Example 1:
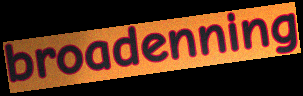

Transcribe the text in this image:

broadenning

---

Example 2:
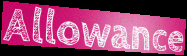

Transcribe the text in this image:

Allowance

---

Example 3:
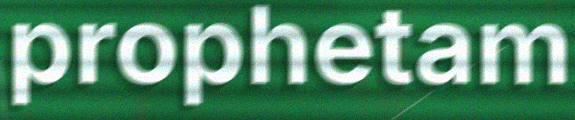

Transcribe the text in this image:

prophetam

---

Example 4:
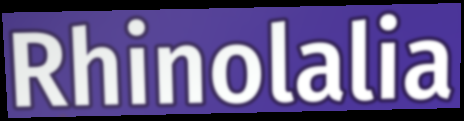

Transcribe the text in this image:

Rhinolalia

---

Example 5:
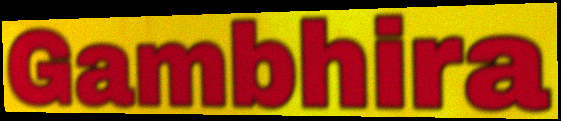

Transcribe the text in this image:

Gambhira